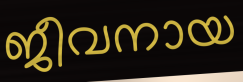
ജീവനായ